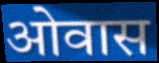
ओवास